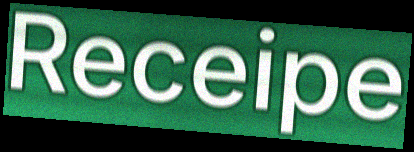
Receipe